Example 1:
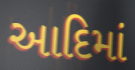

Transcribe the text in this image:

આદિમાં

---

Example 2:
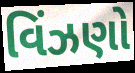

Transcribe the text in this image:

વિંઝણો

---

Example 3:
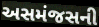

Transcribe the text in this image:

અસમંજસની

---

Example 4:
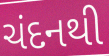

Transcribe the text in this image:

ચંદનથી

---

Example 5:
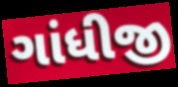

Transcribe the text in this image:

ગાંધીજી